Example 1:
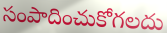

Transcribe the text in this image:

సంపాదించుకోగలదు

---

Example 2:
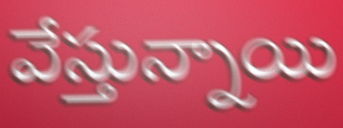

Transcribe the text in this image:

వేస్తున్నాయి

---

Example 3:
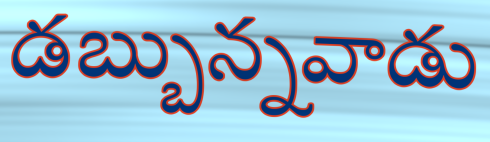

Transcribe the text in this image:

డబ్బున్నవాడు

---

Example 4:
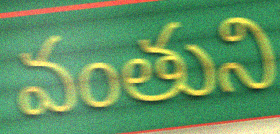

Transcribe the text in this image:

వంతుని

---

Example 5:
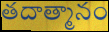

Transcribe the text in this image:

తదాత్మానం